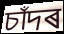
চাঁদৰ